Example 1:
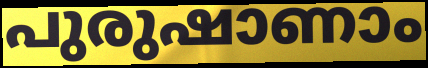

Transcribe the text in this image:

പുരുഷാണാം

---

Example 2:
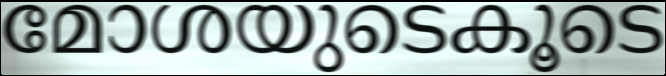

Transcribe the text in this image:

മോശയുടെകൂടെ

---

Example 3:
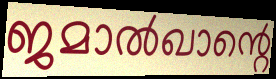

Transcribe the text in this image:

ജമാൽഖാന്റെ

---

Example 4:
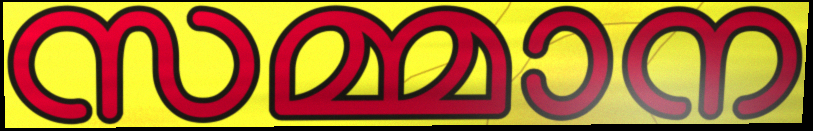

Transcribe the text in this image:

സമ്മാന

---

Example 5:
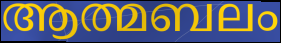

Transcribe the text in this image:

ആത്മബലം